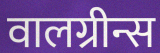
वालग्रीन्स